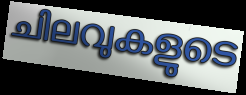
ചിലവുകളുടെ